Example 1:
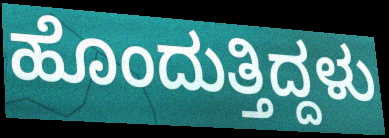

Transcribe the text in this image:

ಹೊಂದುತ್ತಿದ್ದಳು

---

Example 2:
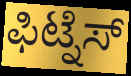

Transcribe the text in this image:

ಫಿಟ್ನೆಸ್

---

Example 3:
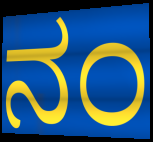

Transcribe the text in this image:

ನಂ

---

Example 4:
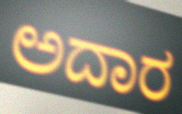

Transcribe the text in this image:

ಅದಾರ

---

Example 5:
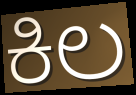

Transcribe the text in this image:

ಕಿಲ